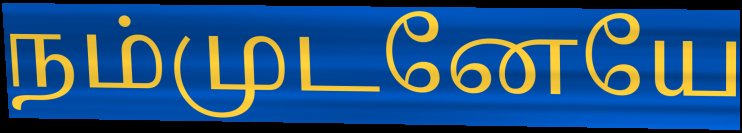
நம்முடனேயே